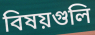
বিষয়গুলি